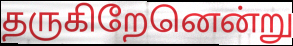
தருகிறேனென்று